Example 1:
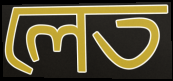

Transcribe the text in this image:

লেত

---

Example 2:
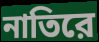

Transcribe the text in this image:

নাতিরে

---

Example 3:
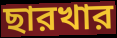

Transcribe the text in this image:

ছারখার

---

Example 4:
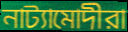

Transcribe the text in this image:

নাট্যামোদীরা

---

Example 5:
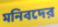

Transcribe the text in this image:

মনিবদের